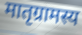
मातृग्रामस्य